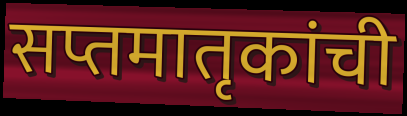
सप्तमातृकांची